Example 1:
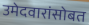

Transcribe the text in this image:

उमेदवारांसोबत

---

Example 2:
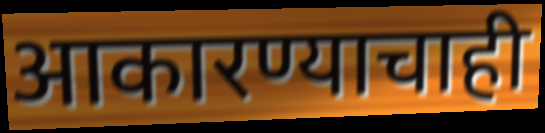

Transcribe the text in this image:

आकारण्याचाही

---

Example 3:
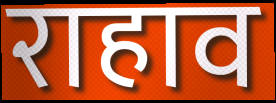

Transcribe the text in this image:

राहाव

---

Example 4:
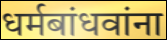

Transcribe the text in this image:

धर्मबांधवांना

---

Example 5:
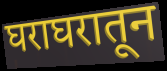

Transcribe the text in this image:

घराघरातून